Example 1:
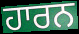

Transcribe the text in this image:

ਹਾਰਨ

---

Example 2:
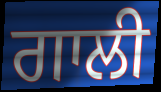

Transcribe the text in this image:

ਗਾਲੀ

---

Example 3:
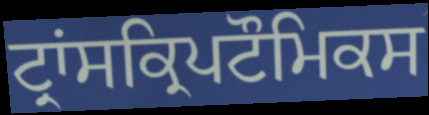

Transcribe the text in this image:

ਟ੍ਰਾਂਸਕ੍ਰਿਪਟੌਮਿਕਸ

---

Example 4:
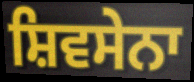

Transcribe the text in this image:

ਸ਼ਿਵਸੇਨਾ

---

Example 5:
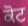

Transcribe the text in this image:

ਕੋਟ